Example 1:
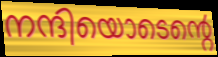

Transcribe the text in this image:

നന്ദിയൊടെന്റെ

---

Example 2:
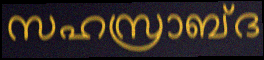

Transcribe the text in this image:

സഹസ്രാബ്ദ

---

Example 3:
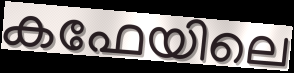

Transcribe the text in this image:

കഫേയിലെ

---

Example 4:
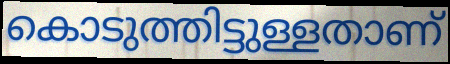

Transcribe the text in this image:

കൊടുത്തിട്ടുള്ളതാണ്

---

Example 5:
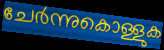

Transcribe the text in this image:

ചേർന്നുകൊള്ളുക